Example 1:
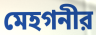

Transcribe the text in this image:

মেহগনীর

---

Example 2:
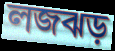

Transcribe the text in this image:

লজঝড়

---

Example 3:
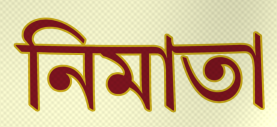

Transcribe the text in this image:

নিমাতা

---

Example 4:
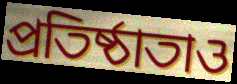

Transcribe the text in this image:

প্রতিষ্ঠাতাও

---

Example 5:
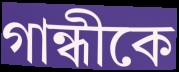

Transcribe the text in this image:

গান্ধীকে